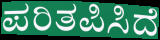
ಪರಿತಪಿಸಿದೆ